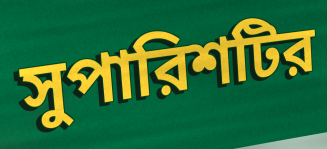
সুপারিশটির